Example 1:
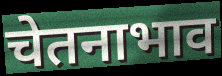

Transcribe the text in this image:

चेतनाभाव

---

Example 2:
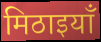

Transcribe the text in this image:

मिठाइयाँ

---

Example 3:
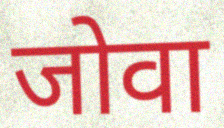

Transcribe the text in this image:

जोवा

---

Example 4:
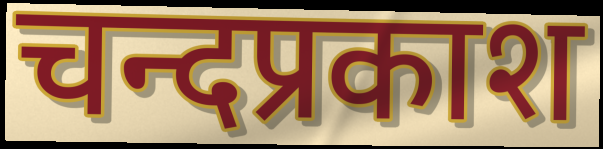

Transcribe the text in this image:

चन्दप्रकाश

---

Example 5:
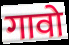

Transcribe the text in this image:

गावो